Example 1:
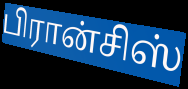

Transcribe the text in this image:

பிரான்சிஸ்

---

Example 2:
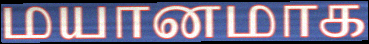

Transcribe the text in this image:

மயானமாக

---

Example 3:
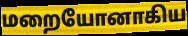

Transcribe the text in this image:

மறையோனாகிய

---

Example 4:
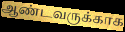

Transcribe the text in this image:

ஆண்டவருக்காக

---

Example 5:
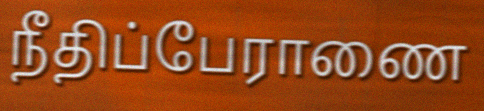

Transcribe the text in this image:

நீதிப்பேராணை